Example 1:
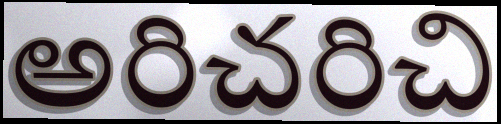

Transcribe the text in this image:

అరిచరిచి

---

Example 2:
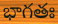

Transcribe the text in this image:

భాగతః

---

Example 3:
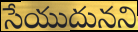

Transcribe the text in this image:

సేయుదునని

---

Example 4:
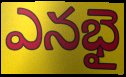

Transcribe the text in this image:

ఎనభై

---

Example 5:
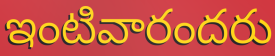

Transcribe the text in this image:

ఇంటివారందరు